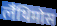
लैंथिमोस